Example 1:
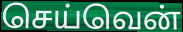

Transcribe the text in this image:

செய்வென்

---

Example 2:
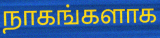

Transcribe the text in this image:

நாகங்களாக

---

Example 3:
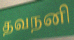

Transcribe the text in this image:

தவநனி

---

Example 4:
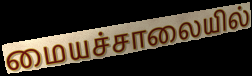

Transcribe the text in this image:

மையச்சாலையில்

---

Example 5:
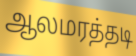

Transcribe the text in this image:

ஆலமரத்தடி